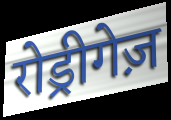
रोड्रीगेज़